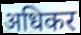
अधिकर